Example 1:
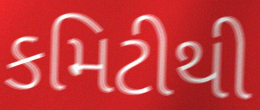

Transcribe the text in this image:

કમિટીથી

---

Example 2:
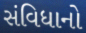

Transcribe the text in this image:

સંવિધાનો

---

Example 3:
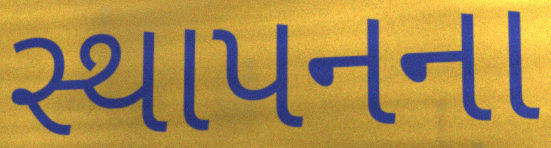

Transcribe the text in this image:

સ્થાપનના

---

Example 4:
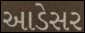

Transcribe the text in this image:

આડેસર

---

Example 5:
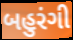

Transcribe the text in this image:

બહુરંગી